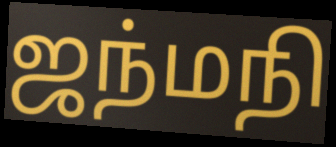
ஜந்மநி